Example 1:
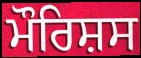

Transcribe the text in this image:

ਮੌਰਿਸ਼ਸ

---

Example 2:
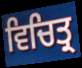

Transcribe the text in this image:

ਵਿਚਿਤ੍ਰ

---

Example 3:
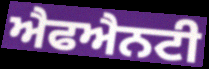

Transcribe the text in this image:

ਐਫਐਨਟੀ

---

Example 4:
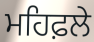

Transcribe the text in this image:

ਮਹਿਫ਼ਲੇ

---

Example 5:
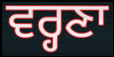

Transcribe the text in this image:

ਵਰ੍ਹਣਾ